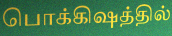
பொக்கிஷத்தில்